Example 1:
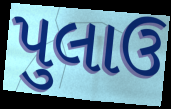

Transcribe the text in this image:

પુલાઉ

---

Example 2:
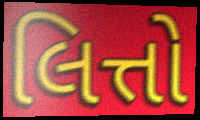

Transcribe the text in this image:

લિત્તો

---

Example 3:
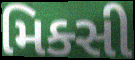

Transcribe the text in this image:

મિક્સી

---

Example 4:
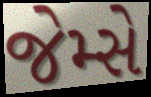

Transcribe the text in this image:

જેમ્સે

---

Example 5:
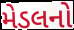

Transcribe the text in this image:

મેડલનો